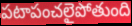
పటాపంచలైపోతుంది